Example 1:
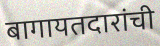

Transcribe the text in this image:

बागायतदारांची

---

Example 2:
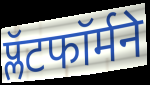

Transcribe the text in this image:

प्लॅटफॉर्मने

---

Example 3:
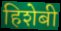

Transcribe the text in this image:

हिशेबी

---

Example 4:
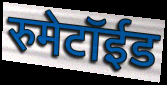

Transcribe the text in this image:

रुमेटॉईड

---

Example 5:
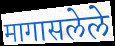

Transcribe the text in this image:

मागासलेले